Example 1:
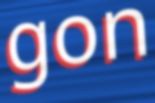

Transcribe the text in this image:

gon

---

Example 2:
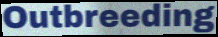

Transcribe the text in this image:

Outbreeding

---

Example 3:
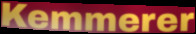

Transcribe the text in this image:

Kemmerer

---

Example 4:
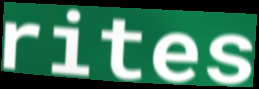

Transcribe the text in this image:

rites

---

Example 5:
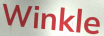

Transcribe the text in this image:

Winkle